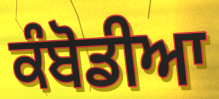
ਕੰਬੋਡੀਆ